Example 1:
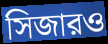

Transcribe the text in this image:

সিজারও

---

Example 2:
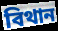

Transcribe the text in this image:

বিথান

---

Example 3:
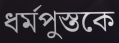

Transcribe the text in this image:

ধর্মপুস্তকে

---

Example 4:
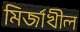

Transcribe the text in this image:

মির্জাখীল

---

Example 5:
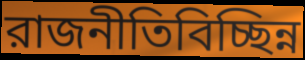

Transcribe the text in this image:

রাজনীতিবিচ্ছিন্ন